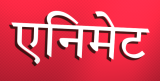
एनिमेट